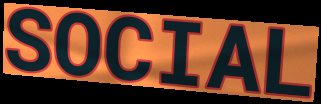
SOCIAL